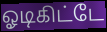
ஓடிகிட்டே